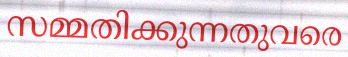
സമ്മതിക്കുന്നതുവരെ